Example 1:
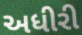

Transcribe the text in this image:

અધીરી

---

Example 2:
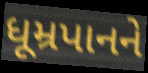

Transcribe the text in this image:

ધૂમ્રપાનને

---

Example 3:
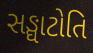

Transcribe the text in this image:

સઙ્ઘાટોતિ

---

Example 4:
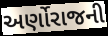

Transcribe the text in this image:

અર્ણોરાજની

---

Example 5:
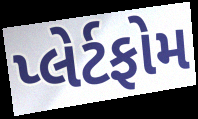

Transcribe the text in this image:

પ્લેર્ટફોમ